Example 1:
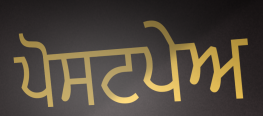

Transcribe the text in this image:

ਪੋਸਟਪੇਅ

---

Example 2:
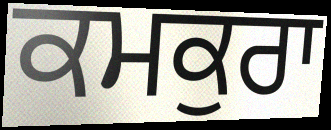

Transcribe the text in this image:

ਕਮਕੁਰਾ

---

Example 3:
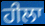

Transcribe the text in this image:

ਹੀਲਾ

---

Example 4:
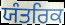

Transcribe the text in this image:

ਯੰਤਰਿਕ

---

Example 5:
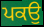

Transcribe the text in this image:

ਪਕਉ